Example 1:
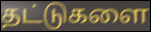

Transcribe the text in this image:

தட்டுகளை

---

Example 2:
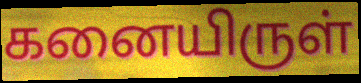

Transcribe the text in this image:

கனையிருள்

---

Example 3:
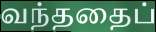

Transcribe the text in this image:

வந்ததைப்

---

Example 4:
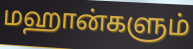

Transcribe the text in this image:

மஹான்களும்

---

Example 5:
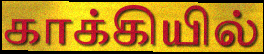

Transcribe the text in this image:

காக்கியில்